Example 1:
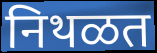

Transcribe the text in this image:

निथळत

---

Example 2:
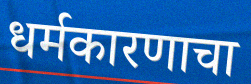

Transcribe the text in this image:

धर्मकारणाचा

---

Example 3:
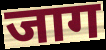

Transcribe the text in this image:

जाग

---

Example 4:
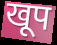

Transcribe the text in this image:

खूप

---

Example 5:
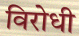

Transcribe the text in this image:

विरोधी